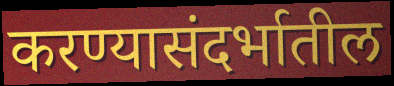
करण्यासंदर्भातील